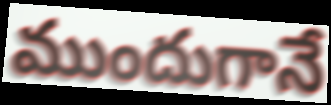
ముందుగానే